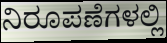
ನಿರೂಪಣೆಗಳಲ್ಲಿ